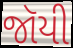
જૉયી